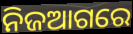
ନିଜଆଗରେ